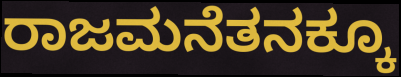
ರಾಜಮನೆತನಕ್ಕೂ